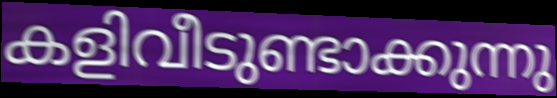
കളിവീടുണ്ടാക്കുന്നു